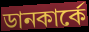
ডানকার্কে